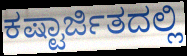
ಕಷ್ಟಾರ್ಜಿತದಲ್ಲಿ